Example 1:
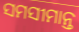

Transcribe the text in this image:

ସମସୀମାନ୍ତ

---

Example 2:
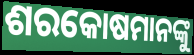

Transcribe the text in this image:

ଶରକୋଷମାନଙ୍କୁ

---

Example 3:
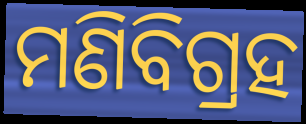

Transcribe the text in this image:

ମଣିବିଗ୍ରହ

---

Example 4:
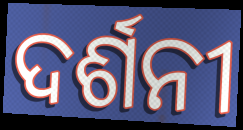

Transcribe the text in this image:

ଦର୍ଶନୀ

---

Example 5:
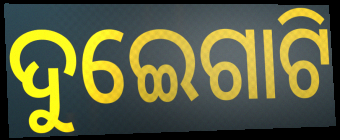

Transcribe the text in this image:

ଦୁଇେଗାଟି